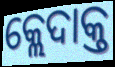
କ୍ଲେଦାକ୍ତ